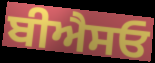
ਬੀਐਸਓ